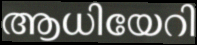
ആധിയേറി